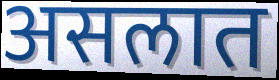
असलात